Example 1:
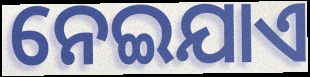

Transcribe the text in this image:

ନେଇଯାଏ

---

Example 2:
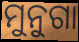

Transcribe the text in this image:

ମୁନୁଗା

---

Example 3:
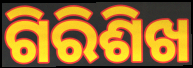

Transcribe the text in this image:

ଗିରିଶିଖ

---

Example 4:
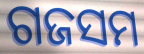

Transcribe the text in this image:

ଗଜସମ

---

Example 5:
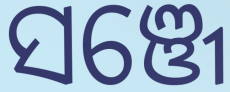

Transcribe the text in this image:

ସଞ୍ଜେ